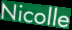
Nicolle